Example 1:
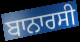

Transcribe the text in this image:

ਬਾਨਾਰਸੀ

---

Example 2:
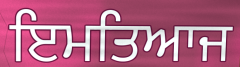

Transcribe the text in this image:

ਇਮਤਿਆਜ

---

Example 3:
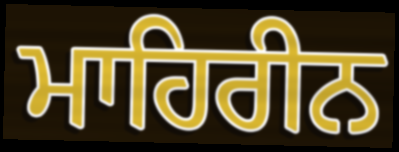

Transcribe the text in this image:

ਮਾਹਿਰੀਨ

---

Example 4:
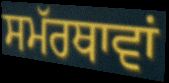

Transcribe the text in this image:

ਸਮੱਰਥਾਵਾਂ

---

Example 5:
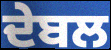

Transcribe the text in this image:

ਦੇਬਲ